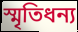
স্মৃতিধন্য